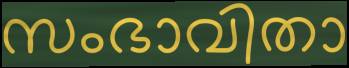
സംഭാവിതാ